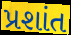
પ્રશાંત